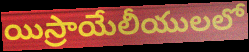
యిస్రాయేలీయులలో